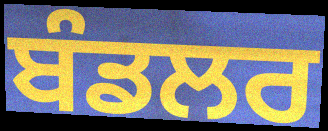
ਬੰਡਲਰ